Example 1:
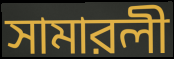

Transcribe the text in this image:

সামারলী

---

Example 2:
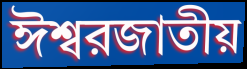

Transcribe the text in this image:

ঈশ্বরজাতীয়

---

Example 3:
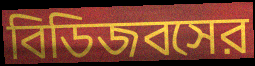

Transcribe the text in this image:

বিডিজবসের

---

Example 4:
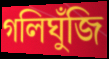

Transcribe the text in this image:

গলিঘুঁজি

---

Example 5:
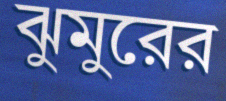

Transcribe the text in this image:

ঝুমুরের